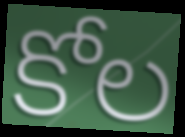
కోల